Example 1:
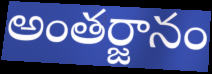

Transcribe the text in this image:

అంతర్జానం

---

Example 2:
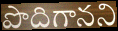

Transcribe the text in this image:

పొదిగానని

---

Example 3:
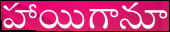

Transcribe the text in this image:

హాయిగానూ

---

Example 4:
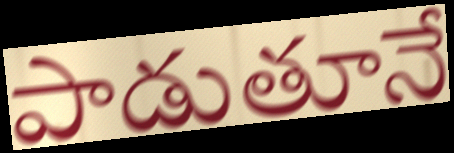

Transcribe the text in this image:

పాడుతూనే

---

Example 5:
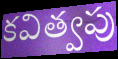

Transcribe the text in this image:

కవిత్వపు